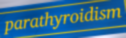
parathyroidism